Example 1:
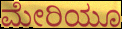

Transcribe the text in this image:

ಮೇರಿಯೂ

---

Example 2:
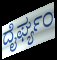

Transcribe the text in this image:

ದೈರ್ಘ್ಯಂ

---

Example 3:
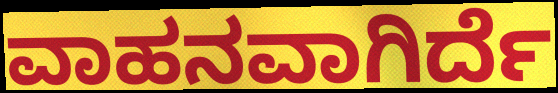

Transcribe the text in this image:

ವಾಹನವಾಗಿರ್ದೆ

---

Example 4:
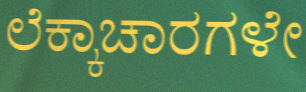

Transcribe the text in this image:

ಲೆಕ್ಕಾಚಾರಗಳೇ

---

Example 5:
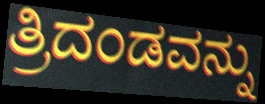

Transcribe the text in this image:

ತ್ರಿದಂಡವನ್ನು